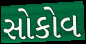
સોકોવ